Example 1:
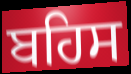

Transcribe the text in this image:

ਬਹਿਸ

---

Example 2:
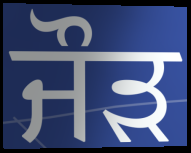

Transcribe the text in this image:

ਜੌੜ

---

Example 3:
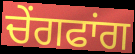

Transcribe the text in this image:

ਚੇਂਗਫਾਂਗ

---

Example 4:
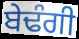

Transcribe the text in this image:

ਬੇਢੰਗੀ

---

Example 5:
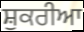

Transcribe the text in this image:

ਸ਼ੁਕਰੀਆ